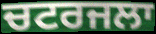
ਚਟਰਜਲਾ